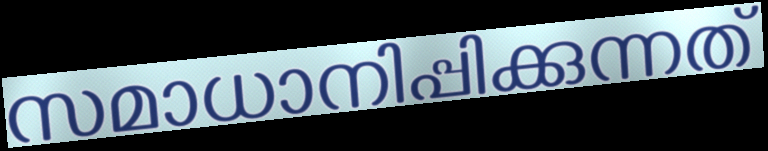
സമാധാനിപ്പിക്കുന്നത്